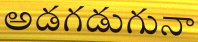
అడగడుగునా